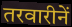
तरवारीनें